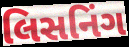
લિસનિંગ